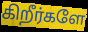
கிறீர்களே